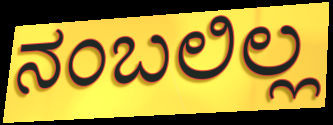
ನಂಬಲಿಲ್ಲ